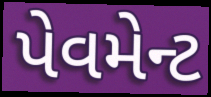
પેવમેન્ટ